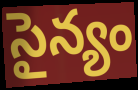
సైన్యం